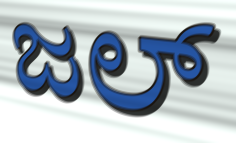
ಜಲ್